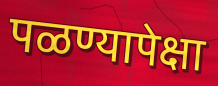
पळण्यापेक्षा